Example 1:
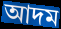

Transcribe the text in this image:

আদম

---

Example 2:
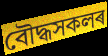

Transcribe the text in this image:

বৌদ্ধসকলৰ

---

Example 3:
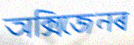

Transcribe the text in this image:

অক্সিজেনৰ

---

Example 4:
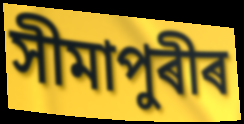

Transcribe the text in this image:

সীমাপুৰীৰ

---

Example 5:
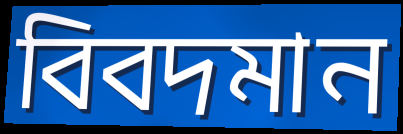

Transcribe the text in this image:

বিবদমান